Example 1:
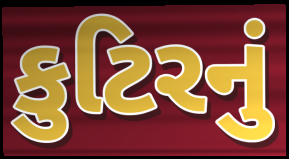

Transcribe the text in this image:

કુટિરનું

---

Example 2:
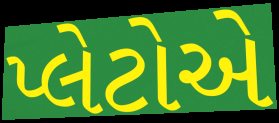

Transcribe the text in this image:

પ્લેટોએ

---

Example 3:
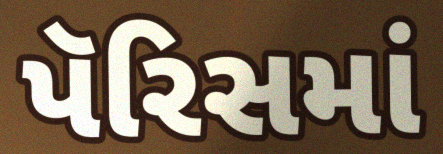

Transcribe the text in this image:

પૅરિસમાં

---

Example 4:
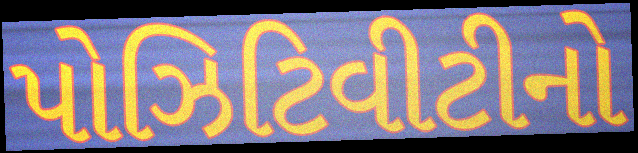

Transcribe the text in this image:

પોઝિટિવીટીનો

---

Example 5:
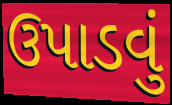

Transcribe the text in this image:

ઉપાડવું